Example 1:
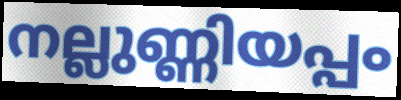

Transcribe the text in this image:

നല്ലുണ്ണിയപ്പം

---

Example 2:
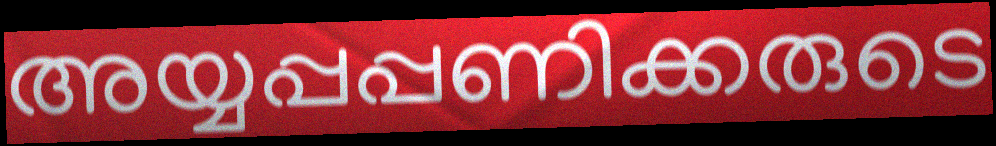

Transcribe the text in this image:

അയ്യപ്പപ്പണിക്കരുടെ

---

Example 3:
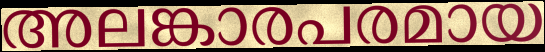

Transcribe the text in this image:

അലങ്കാരപരമായ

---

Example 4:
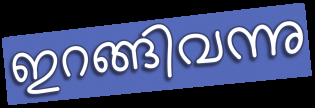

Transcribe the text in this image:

ഇറങ്ങിവന്നു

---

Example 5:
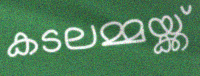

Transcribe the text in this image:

കടലമ്മയ്ക്ക്